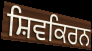
ਸ਼ਿਵਕਿਰਨ